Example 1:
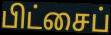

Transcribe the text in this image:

பிட்சைப்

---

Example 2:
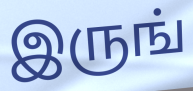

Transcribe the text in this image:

இருங்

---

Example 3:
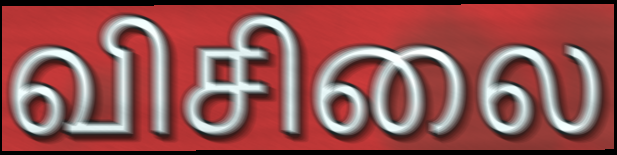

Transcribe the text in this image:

விசிலை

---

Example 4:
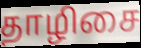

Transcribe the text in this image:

தாழிசை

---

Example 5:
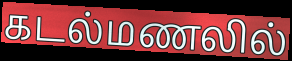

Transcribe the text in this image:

கடல்மணலில்